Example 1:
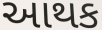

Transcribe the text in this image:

આથક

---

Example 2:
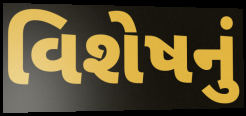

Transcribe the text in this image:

વિશેષનું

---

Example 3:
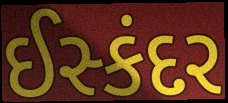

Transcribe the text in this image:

ઈસ્કંદર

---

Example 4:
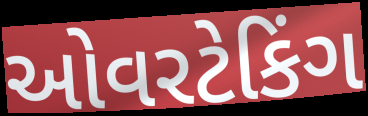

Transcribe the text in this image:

ઓવરટેકિંગ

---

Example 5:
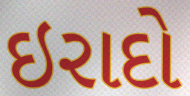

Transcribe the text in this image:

ઇરાદો